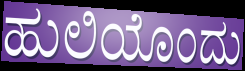
ಹುಲಿಯೊಂದು